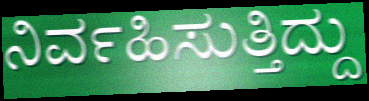
ನಿರ್ವಹಿಸುತ್ತಿದ್ದು